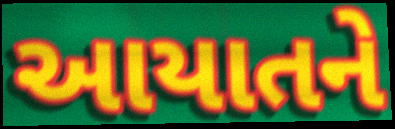
આયાતને